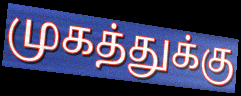
முகத்துக்கு